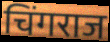
चिंगराज